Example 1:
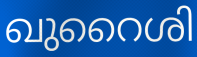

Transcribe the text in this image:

ഖുറൈശി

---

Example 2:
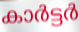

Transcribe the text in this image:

കാർട്ടർ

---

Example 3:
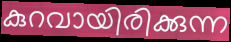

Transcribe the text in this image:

കുറവായിരിക്കുന്ന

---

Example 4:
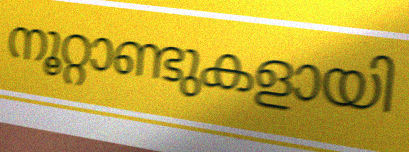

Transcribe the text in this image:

നൂറ്റാണ്ടുകളായി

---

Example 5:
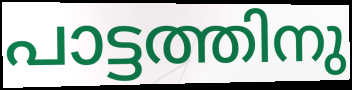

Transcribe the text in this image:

പാട്ടത്തിനു